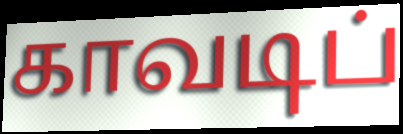
காவடிப்